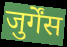
जुर्गेंस